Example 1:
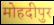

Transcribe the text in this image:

मोहदीपुर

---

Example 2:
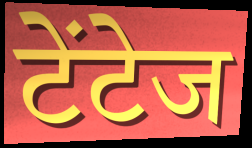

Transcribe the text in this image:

टेंटेज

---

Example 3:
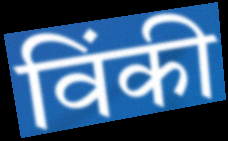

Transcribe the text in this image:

विंकी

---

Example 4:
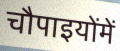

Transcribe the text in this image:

चौपाइयोंमें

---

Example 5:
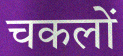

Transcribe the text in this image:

चकलों